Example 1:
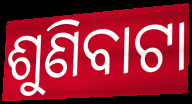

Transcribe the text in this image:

ଶୁଣିବାଟା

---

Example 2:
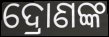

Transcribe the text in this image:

ଦ୍ରୋଣଙ୍କ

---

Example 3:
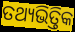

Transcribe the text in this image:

ତଥ୍ୟଭିତ୍ତିକ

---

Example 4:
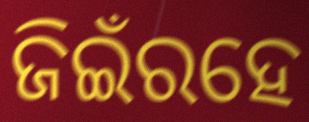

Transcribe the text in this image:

ଜିଇଁରହେ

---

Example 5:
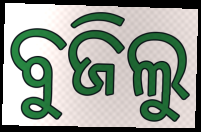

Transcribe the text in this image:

ବୁଜିଲୁ